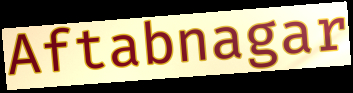
Aftabnagar